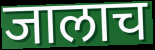
जालाच